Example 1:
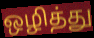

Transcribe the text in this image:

ஒழித்து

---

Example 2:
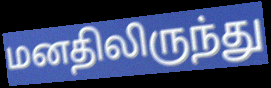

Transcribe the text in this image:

மனதிலிருந்து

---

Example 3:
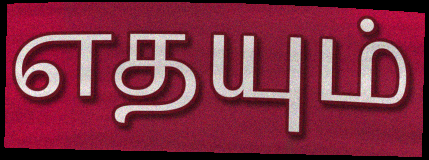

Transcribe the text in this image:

எதயும்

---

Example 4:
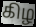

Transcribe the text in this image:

கிழ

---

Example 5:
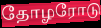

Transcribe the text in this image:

தோழரோடு